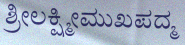
ಶ್ರೀಲಕ್ಷ್ಮೀಮುಖಪದ್ಮ